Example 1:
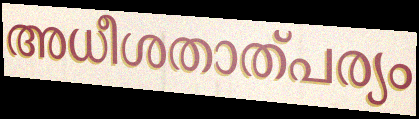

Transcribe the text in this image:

അധീശതാത്പര്യം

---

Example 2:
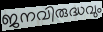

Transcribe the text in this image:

ജനവിരുദ്ധവും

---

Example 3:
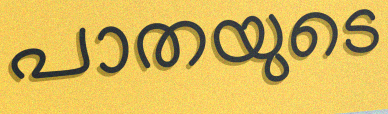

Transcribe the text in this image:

പാതയുടെ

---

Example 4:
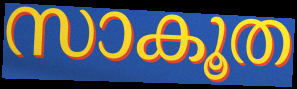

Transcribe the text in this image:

സാകൂത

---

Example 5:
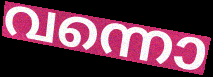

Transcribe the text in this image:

വന്നൊ